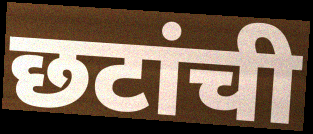
छटांची